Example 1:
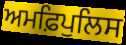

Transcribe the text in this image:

ਅਮਫ਼ਿਪੁਲਿਸ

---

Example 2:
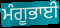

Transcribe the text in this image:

ਮੰਗੂਭਾਈ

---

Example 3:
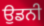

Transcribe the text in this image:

ਉਡਨੀ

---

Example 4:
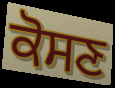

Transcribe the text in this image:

ਕੋਸਣ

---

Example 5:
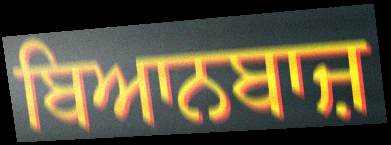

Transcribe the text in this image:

ਬਿਆਨਬਾਜ਼